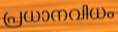
പ്രധാനവിധം